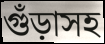
গুঁড়াসহ